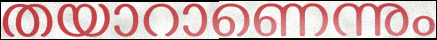
തയാറാണെന്നും